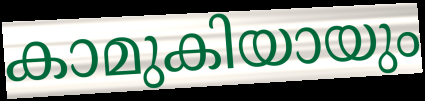
കാമുകിയായും